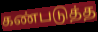
கண்படுத்த